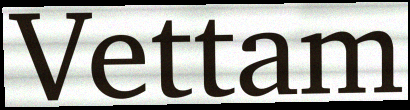
Vettam